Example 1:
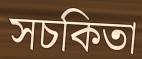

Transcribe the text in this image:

সচকিতা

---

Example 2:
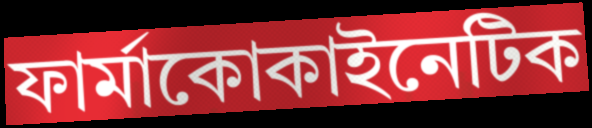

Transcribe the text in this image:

ফার্মাকোকাইনেটিক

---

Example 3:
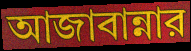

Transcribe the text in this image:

আজাবান্নার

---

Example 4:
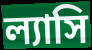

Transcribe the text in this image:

ল্যাসি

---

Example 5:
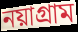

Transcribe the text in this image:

নয়াগ্রাম